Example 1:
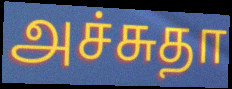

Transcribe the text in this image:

அச்சுதா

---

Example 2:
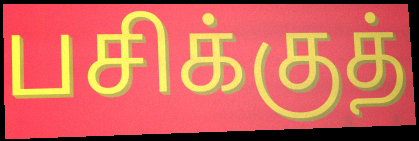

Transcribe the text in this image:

பசிக்குத்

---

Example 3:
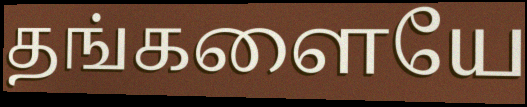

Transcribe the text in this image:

தங்களையே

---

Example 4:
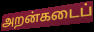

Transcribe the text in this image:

அறன்கடைப்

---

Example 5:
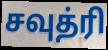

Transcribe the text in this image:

சவுத்ரி